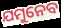
ଯମୁନେବ